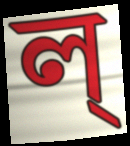
ল্